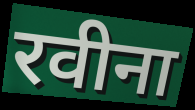
रवीना